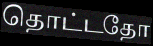
தொட்டதோ